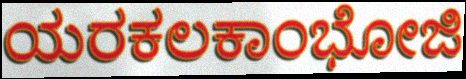
ಯರಕಲಕಾಂಭೋಜಿ